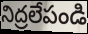
నిద్రలేపండి